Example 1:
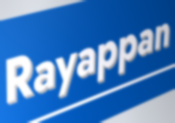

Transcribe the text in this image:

Rayappan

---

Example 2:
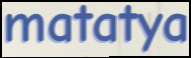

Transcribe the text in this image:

matatya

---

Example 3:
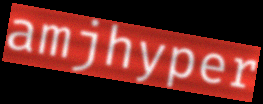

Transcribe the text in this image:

amjhyper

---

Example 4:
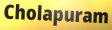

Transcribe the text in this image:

Cholapuram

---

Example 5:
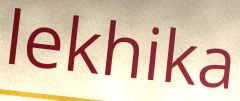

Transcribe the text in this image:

lekhika